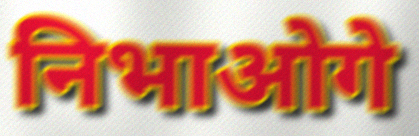
निभाओगे